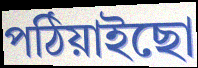
পঠিয়াইছো